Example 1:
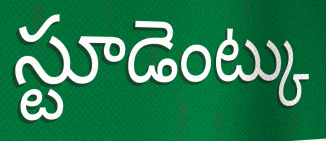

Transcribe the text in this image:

స్టూడెంట్కు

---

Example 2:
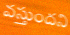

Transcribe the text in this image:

వస్తుందని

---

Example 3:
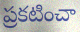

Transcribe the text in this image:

ప్రకటించా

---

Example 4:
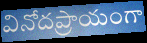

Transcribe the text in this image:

వినోదప్రాయంగా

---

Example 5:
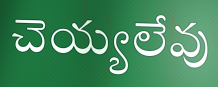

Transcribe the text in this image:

చెయ్యలేవు